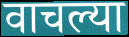
वाचल्या